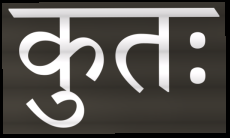
कुतः